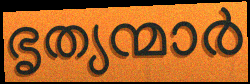
ഭൃത്യന്മാർ